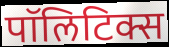
पॉलिटिक्स